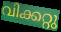
വിക്കറ്റു